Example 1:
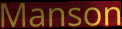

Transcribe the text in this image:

Manson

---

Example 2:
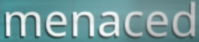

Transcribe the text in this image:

menaced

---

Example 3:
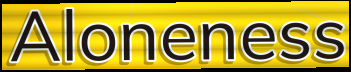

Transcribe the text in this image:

Aloneness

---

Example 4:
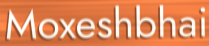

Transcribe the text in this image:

Moxeshbhai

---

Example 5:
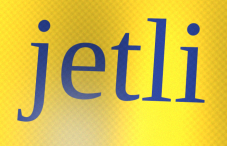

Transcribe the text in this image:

jetli